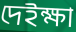
দেইক্ষা